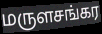
மருளசங்கர